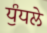
ਧੁੰਧਲੇ